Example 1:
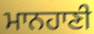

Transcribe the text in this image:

ਮਾਨਹਾਣੀ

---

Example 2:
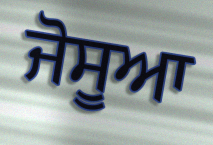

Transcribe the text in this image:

ਜੋਸੂਆ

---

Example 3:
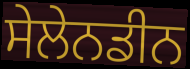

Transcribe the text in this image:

ਸੇਲੇਨਡੀਨ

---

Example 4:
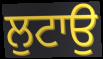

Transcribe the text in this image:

ਲੁਟਾਉ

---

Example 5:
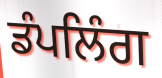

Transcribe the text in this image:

ਡੰਪਲਿੰਗ